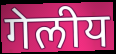
गेलीय